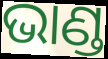
ଭାଣ୍ଡ